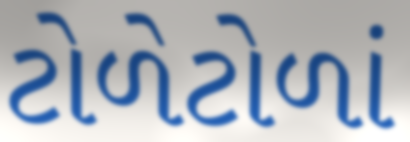
ટોળેટોળાં